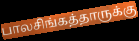
பாலசிங்கத்தாருக்கு